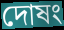
দোষং